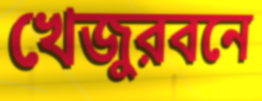
খেজুরবনে